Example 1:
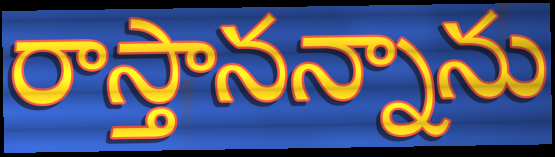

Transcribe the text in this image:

రాస్తానన్నాను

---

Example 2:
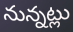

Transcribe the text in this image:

నున్నట్లు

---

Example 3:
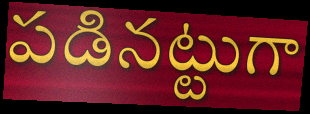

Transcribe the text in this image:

పడినట్టుగా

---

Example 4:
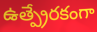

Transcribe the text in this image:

ఉత్ప్రేరకంగా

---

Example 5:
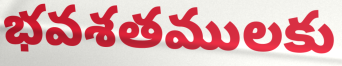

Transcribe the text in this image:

భవశతములకు